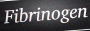
Fibrinogen